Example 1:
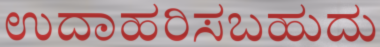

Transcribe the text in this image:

ಉದಾಹರಿಸಬಹುದು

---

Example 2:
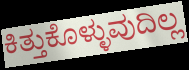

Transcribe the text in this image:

ಕಿತ್ತುಕೊಳ್ಳುವುದಿಲ್ಲ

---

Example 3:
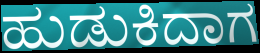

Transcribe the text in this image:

ಹುಡುಕಿದಾಗ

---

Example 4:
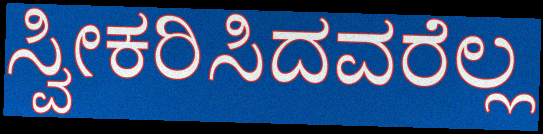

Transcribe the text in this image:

ಸ್ವೀಕರಿಸಿದವರೆಲ್ಲ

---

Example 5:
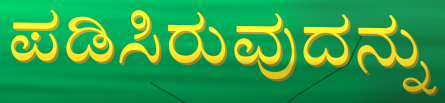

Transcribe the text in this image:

ಪಡಿಸಿರುವುದನ್ನು